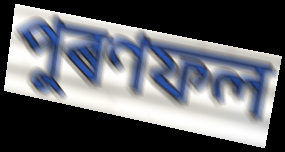
পুৰণফল